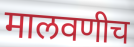
मालवणीच